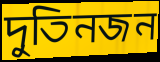
দুতিনজন